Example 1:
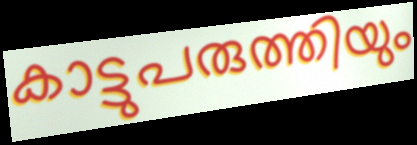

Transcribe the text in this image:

കാട്ടുപരുത്തിയും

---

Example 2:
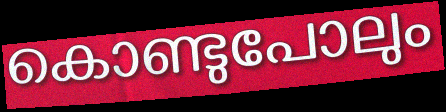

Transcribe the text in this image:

കൊണ്ടുപോലും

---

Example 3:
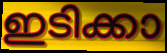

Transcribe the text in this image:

ഇടിക്കാ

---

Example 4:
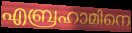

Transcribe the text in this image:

എബ്രഹാമിനെ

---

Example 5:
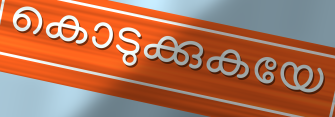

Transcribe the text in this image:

കൊടുക്കുകയേ